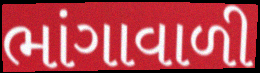
ભાંગાવાળી